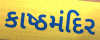
કાષ્ઠમંદિર